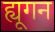
ह्यूगन